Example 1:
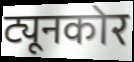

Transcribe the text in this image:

ट्यूनकोर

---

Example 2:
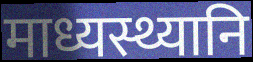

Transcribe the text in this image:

माध्यस्थ्यानि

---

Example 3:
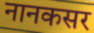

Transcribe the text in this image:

नानकसर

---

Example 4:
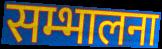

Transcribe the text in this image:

सम्भालना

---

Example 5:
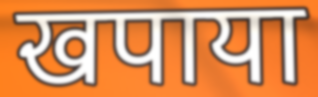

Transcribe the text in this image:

खपाया